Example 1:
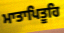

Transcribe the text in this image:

ਮਾਤਾਪਿਤੂਹਿ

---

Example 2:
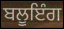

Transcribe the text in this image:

ਬਲੂਇੰਗ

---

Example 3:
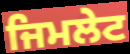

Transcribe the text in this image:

ਜਿਮਲੇਟ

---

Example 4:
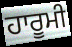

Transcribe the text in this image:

ਹਾਰੂਮੀ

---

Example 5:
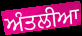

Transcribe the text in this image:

ਅੰਤਲੀਆ